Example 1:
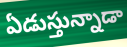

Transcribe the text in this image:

ఏడుస్తున్నాడా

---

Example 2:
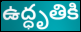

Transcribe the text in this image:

ఉద్ధృతికి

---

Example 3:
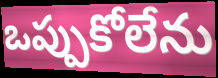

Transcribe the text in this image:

ఒప్పుకోలేను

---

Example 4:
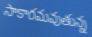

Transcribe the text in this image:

సాకారమవుతున్న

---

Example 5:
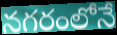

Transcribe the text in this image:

నగరంలోనే